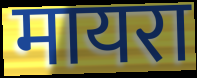
मायरा